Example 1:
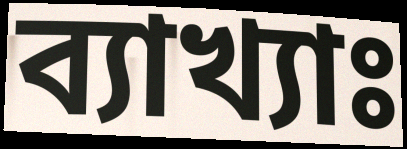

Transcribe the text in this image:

ব্যাখ্যাঃ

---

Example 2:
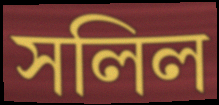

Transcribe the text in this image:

সলিল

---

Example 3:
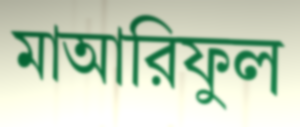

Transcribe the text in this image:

মাআরিফুল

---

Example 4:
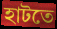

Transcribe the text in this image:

হাটতে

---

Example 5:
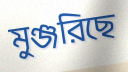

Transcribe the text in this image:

মুঞ্জরিছে